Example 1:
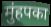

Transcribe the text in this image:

मुंहपका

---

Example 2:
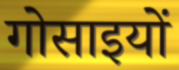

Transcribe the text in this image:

गोसाइयों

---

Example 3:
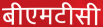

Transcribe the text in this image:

बीएमटीसी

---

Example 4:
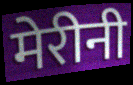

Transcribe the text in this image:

मेरीनी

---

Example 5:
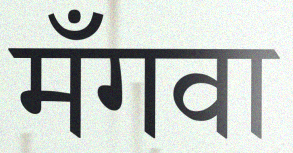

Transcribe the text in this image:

मँगवा